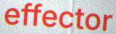
effector